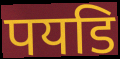
पयडि